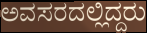
ಅವಸರದಲ್ಲಿದ್ದರು